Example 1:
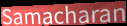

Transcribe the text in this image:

Samacharan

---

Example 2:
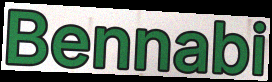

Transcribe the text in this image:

Bennabi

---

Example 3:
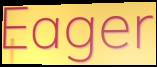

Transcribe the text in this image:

Eager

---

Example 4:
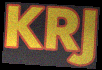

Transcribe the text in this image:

KRJ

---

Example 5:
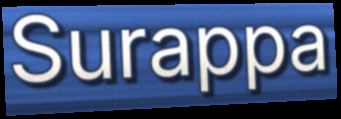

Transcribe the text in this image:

Surappa